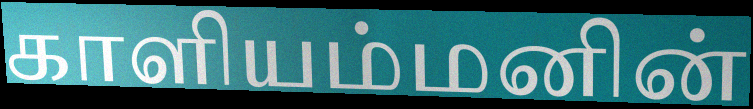
காளியம்மனின்